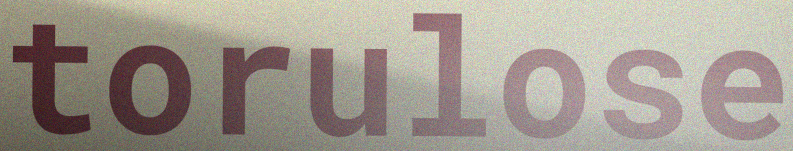
torulose